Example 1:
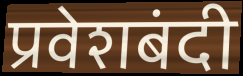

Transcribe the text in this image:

प्रवेशबंदी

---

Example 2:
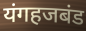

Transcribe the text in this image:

यंगहजबंड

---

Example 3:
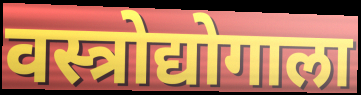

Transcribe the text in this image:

वस्त्रोद्योगाला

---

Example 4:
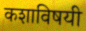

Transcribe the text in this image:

कशाविषयी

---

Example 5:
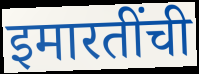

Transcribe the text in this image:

इमारतींची